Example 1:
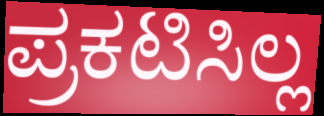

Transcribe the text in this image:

ಪ್ರಕಟಿಸಿಲ್ಲ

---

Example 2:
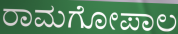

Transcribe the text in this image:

ರಾಮಗೋಪಾಲ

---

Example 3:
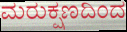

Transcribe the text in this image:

ಮರುಕ್ಷಣದಿಂದ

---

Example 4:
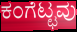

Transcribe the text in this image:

ಕಂಗೆಟ್ಟವು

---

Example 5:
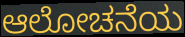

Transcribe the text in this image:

ಆಲೋಚನೆಯ